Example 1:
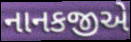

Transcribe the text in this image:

નાનકજીએ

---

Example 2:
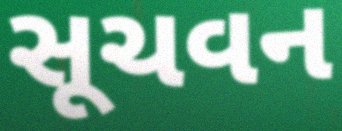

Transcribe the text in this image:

સૂચવન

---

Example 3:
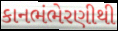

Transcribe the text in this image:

કાનભંભેરણીથી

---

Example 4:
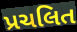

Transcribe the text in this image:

પ્રચલિત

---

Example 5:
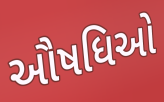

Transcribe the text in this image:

ઔષધિઓ